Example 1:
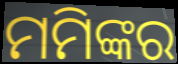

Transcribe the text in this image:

ମମିଙ୍କର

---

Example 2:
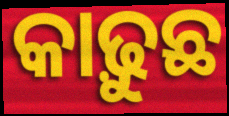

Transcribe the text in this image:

କାଢ଼ୁଛ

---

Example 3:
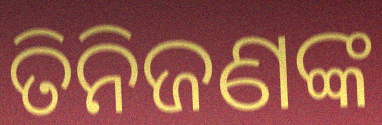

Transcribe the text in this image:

ତିନିଜଣଙ୍କ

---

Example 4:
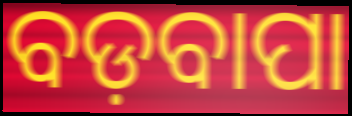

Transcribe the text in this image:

ବଡ଼ବାପା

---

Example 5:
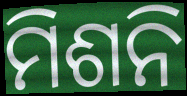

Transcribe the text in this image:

ମିଶନି